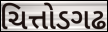
ચિત્તોડગઢ